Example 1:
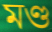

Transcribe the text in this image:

মণ্ড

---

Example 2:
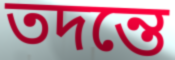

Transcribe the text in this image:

তদন্তে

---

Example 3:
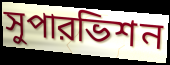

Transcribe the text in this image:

সুপারভিশন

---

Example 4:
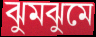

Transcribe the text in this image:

ঝুমঝুমে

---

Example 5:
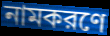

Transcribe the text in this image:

নামকরণে